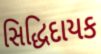
સિદ્ધિદાયક